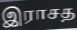
இராசத